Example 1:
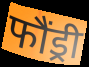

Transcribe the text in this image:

फौंड्री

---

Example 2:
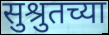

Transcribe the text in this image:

सुश्रुतच्या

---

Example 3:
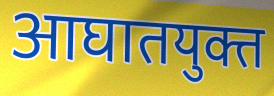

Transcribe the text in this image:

आघातयुक्त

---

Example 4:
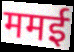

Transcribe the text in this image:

ममई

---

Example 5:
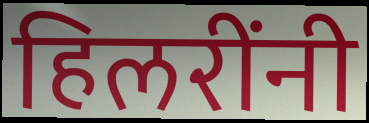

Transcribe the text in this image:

हिलरींनी